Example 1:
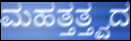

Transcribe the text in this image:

ಮಹತ್ತತ್ತ್ವದ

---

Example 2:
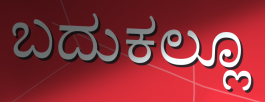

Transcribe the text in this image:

ಬದುಕಲ್ಲೂ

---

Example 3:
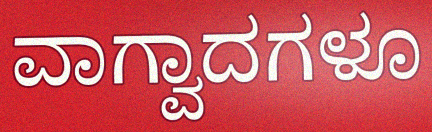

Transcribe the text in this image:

ವಾಗ್ವಾದಗಳೂ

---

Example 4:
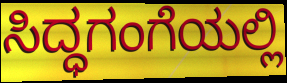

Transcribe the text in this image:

ಸಿದ್ಧಗಂಗೆಯಲ್ಲಿ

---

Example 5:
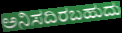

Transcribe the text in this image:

ಅನಿಸದಿರಬಹುದು